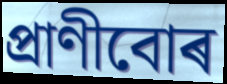
প্ৰাণীবোৰ